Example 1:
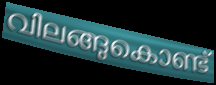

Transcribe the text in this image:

വിലങ്ങുകൊണ്ട്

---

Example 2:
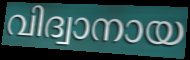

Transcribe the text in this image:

വിദ്വാനായ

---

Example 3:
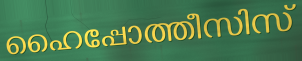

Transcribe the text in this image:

ഹൈപ്പോത്തീസിസ്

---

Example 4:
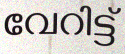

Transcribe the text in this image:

വേറിട്ട്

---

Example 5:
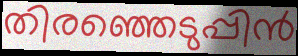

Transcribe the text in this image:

തിരഞ്ഞെടുപ്പിൻ